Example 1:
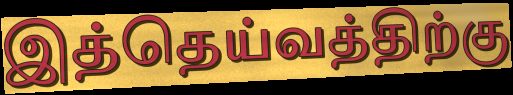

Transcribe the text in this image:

இத்தெய்வத்திற்கு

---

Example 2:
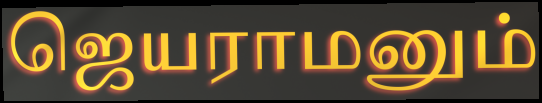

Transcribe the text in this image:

ஜெயராமனும்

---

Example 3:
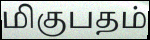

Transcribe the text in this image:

மிகுபதம்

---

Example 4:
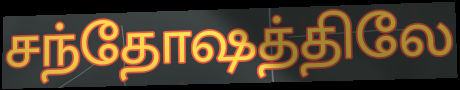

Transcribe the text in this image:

சந்தோஷத்திலே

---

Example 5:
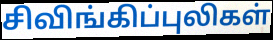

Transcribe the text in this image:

சிவிங்கிப்புலிகள்